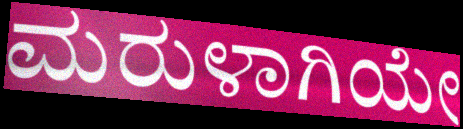
ಮರುಳಾಗಿಯೇ